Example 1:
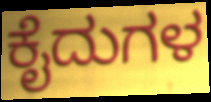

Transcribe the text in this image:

ಕೈದುಗಳ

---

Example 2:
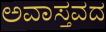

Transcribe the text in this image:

ಅವಾಸ್ತವದ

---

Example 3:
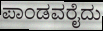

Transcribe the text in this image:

ಪಾಂಡವರೈದು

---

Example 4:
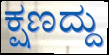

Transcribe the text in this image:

ಕ್ಷಣದ್ದು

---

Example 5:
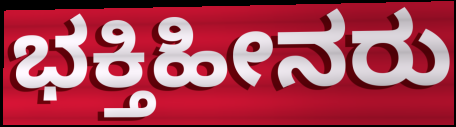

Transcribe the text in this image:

ಭಕ್ತಿಹೀನರು